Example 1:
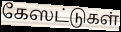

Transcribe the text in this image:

கேஸட்டுகள்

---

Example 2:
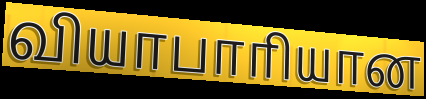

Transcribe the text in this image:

வியாபாரியான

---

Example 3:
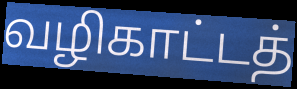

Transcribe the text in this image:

வழிகாட்டத்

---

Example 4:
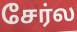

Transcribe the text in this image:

சேர்ல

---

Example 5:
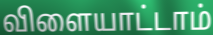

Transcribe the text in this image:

விளையாட்டாம்